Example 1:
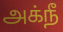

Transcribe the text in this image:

அக்நீ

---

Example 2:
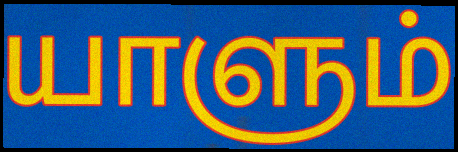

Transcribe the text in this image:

யாளும்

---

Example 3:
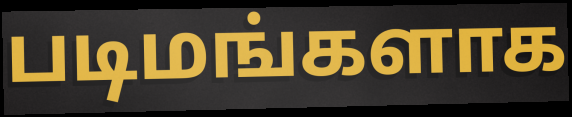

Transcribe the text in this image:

படிமங்களாக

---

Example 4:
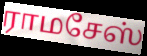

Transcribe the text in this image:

ராமசேஸ்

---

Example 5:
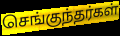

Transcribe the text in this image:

செங்குந்தர்கள்